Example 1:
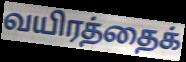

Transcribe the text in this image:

வயிரத்தைக்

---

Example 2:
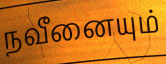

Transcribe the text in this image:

நவீனையும்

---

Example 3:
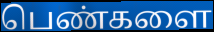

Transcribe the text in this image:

பெண்களை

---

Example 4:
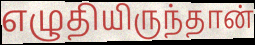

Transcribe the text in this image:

எழுதியிருந்தான்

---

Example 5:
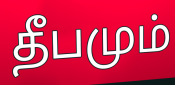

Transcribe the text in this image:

தீபமும்